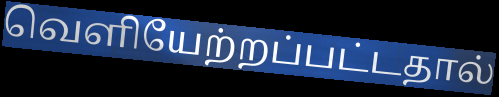
வெளியேற்றப்பட்டதால்